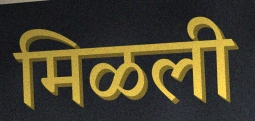
मिळली